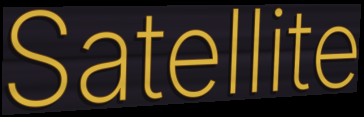
Satellite